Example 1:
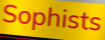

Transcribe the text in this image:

Sophists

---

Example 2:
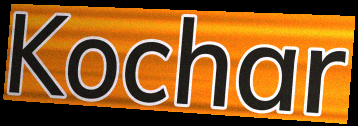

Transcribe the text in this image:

Kochar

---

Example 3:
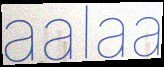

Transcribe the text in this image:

aalaa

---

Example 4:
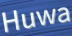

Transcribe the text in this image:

Huwa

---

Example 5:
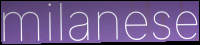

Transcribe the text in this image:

milanese